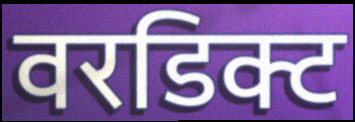
वरडिक्ट